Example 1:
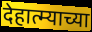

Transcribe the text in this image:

देहात्म्याच्या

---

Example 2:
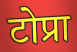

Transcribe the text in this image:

टोप्रा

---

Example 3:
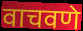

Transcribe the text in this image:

वाचवणे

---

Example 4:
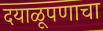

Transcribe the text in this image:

दयाळूपणाचा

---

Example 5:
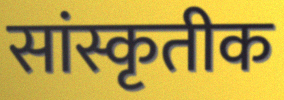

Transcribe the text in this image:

सांस्कृतीक